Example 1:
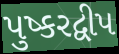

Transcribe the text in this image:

પુષ્કરદ્વીપ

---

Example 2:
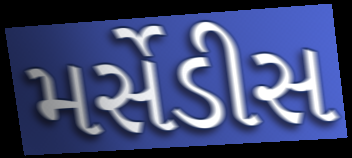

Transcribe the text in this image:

મર્સેડીસ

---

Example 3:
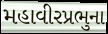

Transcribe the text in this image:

મહાવીરપ્રભુના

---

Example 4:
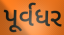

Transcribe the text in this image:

પૂર્વધર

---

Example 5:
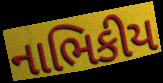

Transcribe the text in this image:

નાભિકીય